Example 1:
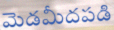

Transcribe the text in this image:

మెడమీదపడి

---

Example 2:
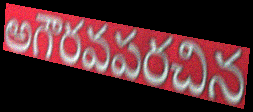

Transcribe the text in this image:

అగౌరవపరచిన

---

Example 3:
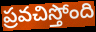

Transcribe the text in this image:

ప్రవచిస్తోంది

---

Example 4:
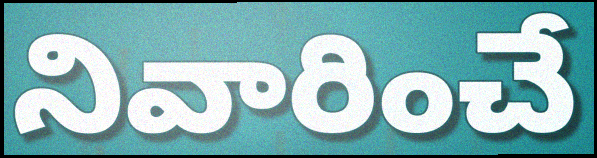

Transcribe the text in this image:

నివారించే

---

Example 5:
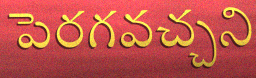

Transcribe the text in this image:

పెరగవచ్చని